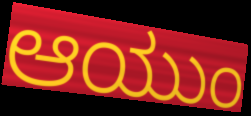
ಆಯುಂ